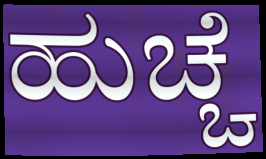
ಹುಚ್ಚೆ